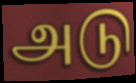
அடு